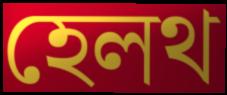
হেলথ